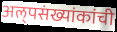
अल्पसंख्यांकांची